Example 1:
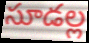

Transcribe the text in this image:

సూడల్ల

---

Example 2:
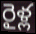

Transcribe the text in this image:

రైళ్ల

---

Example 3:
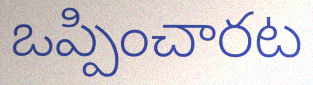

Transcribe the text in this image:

ఒప్పించారట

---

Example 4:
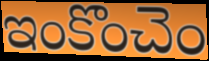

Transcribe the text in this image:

ఇంకొంచెం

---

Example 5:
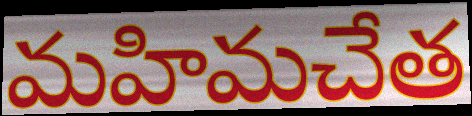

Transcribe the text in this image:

మహిమచేత